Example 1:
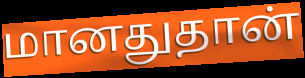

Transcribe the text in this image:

மானதுதான்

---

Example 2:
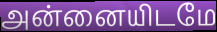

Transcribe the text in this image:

அன்னையிடமே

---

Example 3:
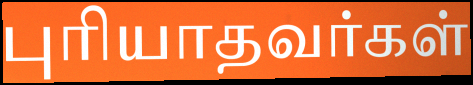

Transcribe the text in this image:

புரியாதவர்கள்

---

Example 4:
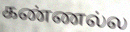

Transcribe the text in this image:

கண்ணல்ல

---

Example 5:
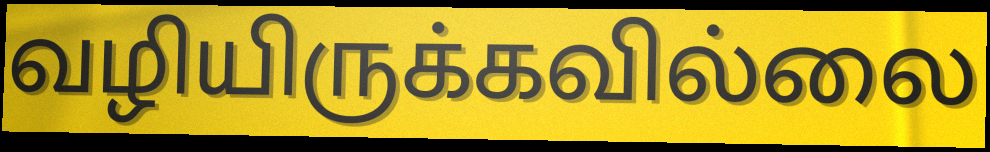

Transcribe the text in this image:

வழியிருக்கவில்லை